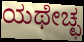
ಯಥೇಚ್ಛ